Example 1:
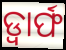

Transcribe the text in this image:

ଡ୍ୱାର୍ଫ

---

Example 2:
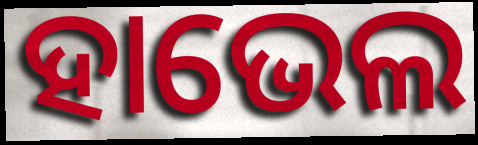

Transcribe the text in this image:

ହାଭେଲ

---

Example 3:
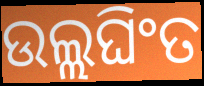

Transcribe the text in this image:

ଉଲ୍ଲଘିଂତ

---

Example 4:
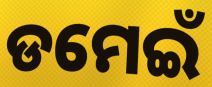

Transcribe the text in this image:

ଡମେଇଁ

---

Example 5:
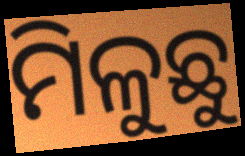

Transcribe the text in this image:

ମିଳୁଛୁ